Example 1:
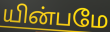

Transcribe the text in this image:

யின்பமே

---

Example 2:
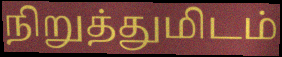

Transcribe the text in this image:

நிறுத்துமிடம்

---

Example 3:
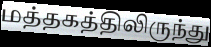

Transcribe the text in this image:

மத்தகத்திலிருந்து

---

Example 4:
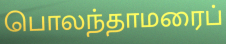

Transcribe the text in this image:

பொலந்தாமரைப்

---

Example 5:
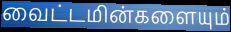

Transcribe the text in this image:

வைட்டமின்களையும்